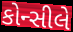
કોન્સીલે